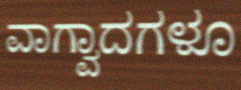
ವಾಗ್ವಾದಗಳೂ